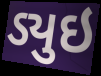
ડ્યુઇ